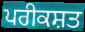
ਪਰੀਕਸ਼ਤ